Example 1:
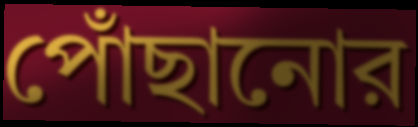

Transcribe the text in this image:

পোঁছানোর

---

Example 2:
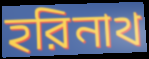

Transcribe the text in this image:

হরিনাথ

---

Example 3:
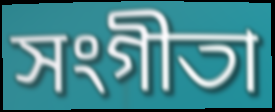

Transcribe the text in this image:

সংগীতা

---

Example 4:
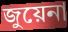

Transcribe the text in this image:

জুয়েনা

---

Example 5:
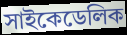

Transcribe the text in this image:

সাইকেডেলিক